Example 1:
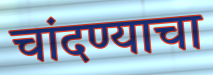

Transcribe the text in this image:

चांदण्याचा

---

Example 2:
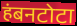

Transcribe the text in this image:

हंबनटोटा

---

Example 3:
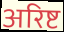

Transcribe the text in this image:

अरिष्ट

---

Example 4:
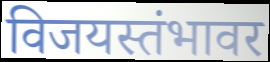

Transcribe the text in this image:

विजयस्तंभावर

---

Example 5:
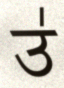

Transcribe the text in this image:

उ॑